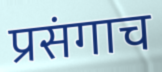
प्रसंगाच